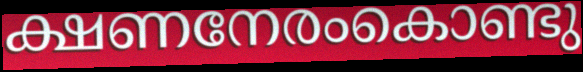
ക്ഷണനേരംകൊണ്ടു